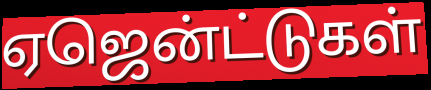
ஏஜென்ட்டுகள்